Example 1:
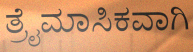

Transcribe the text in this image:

ತ್ರೈಮಾಸಿಕವಾಗಿ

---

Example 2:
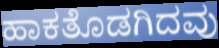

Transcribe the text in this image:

ಹಾಕತೊಡಗಿದವು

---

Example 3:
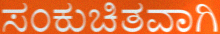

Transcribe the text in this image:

ಸಂಕುಚಿತವಾಗಿ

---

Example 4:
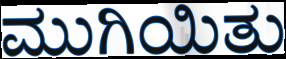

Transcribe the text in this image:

ಮುಗಿಯಿತು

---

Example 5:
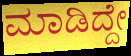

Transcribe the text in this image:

ಮಾಡಿದ್ದೇ